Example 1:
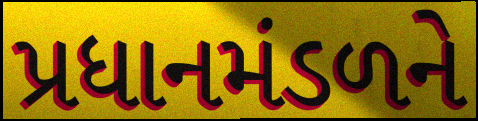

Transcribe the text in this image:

પ્રધાનમંડળને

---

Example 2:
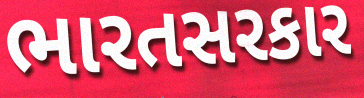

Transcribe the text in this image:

ભારતસરકાર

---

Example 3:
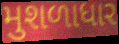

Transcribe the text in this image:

મુશળાધાર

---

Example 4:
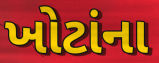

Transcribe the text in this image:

ખોટાંના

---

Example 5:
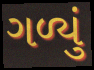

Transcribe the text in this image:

ગળ્યું